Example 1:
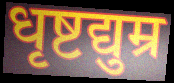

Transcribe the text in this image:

धृष्टद्युम्र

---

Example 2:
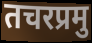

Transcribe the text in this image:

तचरप्रमु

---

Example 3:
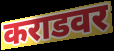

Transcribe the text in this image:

कराडवर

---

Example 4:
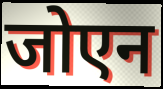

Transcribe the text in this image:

जोएन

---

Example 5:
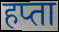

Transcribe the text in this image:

हप्ता